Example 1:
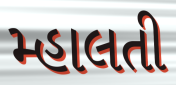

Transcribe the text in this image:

મ્હાલતી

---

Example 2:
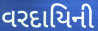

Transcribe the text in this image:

વરદાયિની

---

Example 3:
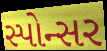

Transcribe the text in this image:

સ્પોન્સર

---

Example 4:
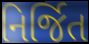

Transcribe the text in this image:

નિર્જિત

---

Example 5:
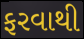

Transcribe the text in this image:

ફરવાથી